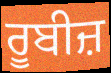
ਰੂਬੀਜ਼